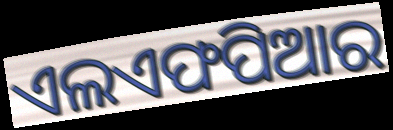
ଏଲଏଫପିଆର